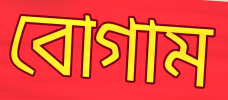
বোগাম